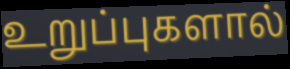
உறுப்புகளால்